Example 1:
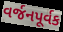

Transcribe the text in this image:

વર્જનપૂર્વક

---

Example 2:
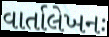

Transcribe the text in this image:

વાર્તાલેખનઃ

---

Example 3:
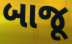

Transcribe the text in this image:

બાજૂ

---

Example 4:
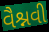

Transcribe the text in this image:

વૈશ્નવી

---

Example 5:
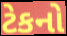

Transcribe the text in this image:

ટેકનો